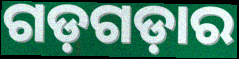
ଗଡ଼ଗଡ଼ାର